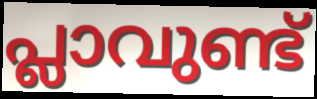
പ്ലാവുണ്ട്